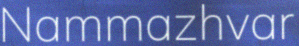
Nammazhvar